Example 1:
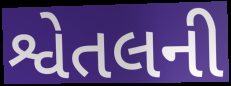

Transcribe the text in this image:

શ્વેતલની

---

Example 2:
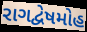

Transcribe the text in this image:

રાગદ્વેષમોહ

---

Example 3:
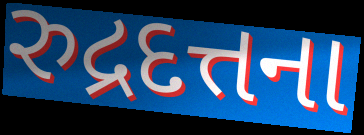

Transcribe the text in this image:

રુદ્રદત્તના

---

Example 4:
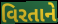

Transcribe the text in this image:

વિરતાને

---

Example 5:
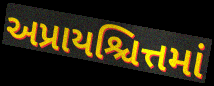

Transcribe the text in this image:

અપ્રાયશ્ચિત્તમાં